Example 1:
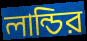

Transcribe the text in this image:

লান্ডির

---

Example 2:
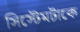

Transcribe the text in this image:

সিস্টেমটাকে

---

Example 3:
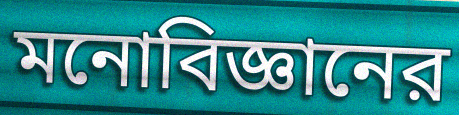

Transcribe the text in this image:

মনোবিজ্ঞানের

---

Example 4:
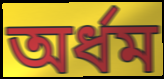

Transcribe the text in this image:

অর্ধম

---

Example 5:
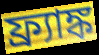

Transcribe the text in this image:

ফ্র্যাঙ্ক